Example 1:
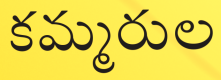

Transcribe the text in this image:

కమ్మరుల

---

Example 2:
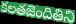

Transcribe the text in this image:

కలతజెందితిని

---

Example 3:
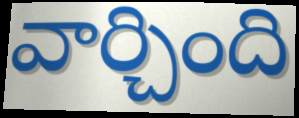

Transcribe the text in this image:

వార్చింది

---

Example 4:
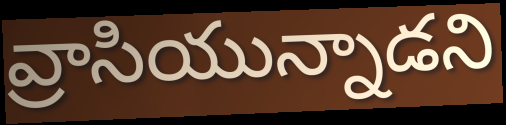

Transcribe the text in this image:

వ్రాసియున్నాడని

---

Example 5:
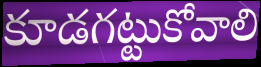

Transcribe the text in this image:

కూడగట్టుకోవాలి